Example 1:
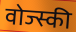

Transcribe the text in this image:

वोज्स्की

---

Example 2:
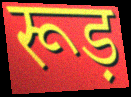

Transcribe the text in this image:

रूड़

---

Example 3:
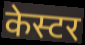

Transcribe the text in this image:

केस्टर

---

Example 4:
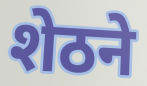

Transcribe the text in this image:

शेठने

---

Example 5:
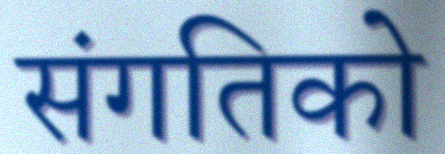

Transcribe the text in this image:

संगतिको